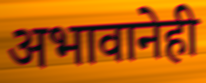
अभावानेही